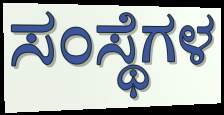
ಸಂಸ್ಥೆಗಳ